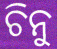
ଚିନୁ